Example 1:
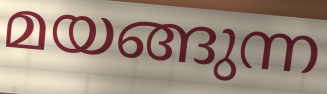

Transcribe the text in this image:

മയങ്ങുന്ന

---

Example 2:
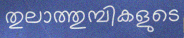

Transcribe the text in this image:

തുലാത്തുമ്പികളുടെ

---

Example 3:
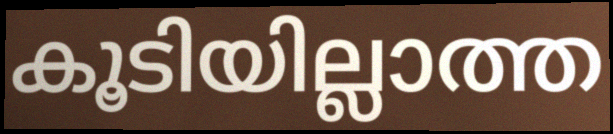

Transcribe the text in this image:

കൂടിയില്ലാത്ത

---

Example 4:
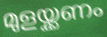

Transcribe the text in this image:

മുളയ്ക്കണം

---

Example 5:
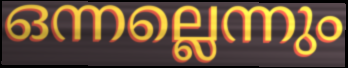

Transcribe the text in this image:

ഒന്നല്ലെന്നും